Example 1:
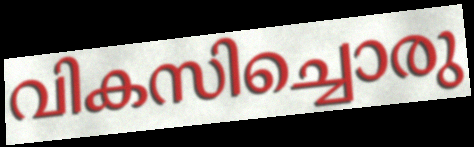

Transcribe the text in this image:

വികസിച്ചൊരു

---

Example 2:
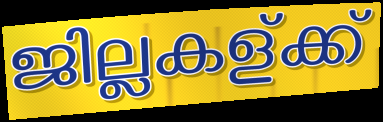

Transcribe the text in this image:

ജില്ലകള്ക്ക്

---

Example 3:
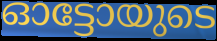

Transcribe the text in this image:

ഓട്ടോയുടെ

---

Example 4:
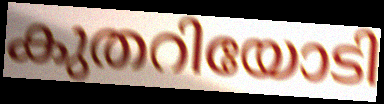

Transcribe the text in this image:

കുതറിയോടി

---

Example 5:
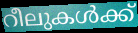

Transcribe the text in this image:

റീലുകൾക്ക്